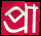
প্রা